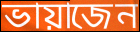
ভায়াজেন